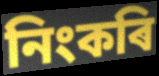
নিংকৰি